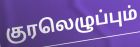
குரலெழுப்பும்